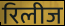
रिलीज